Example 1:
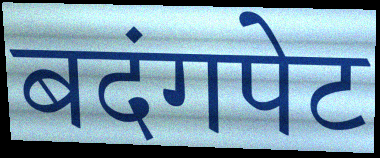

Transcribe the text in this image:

बदंगपेट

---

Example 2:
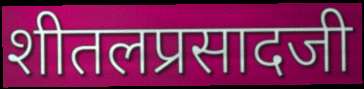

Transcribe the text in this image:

शीतलप्रसादजी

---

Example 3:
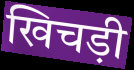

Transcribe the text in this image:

खिचड़ी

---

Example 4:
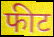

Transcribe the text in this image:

फीट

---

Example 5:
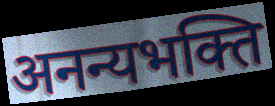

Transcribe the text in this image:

अनन्यभक्ति